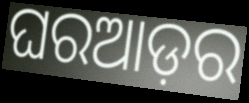
ଘରଆଡ଼ର